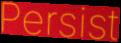
Persist